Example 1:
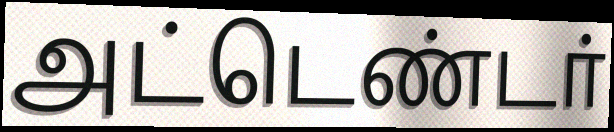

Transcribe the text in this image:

அட்டெண்டர்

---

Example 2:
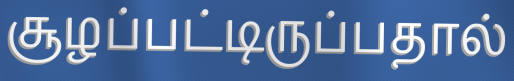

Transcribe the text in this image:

சூழப்பட்டிருப்பதால்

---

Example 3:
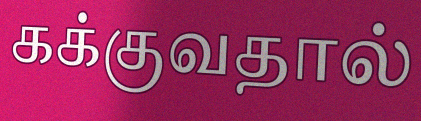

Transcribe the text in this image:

கக்குவதால்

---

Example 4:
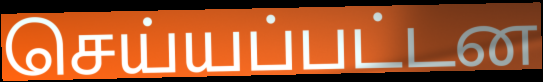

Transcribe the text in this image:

செய்யப்பட்டன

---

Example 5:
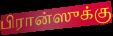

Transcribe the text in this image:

பிரான்ஸுக்கு